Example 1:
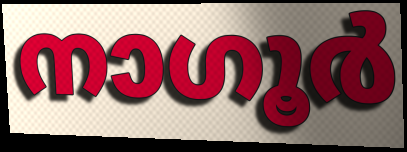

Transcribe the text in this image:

നാഗൂർ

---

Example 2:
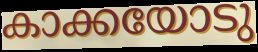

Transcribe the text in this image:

കാക്കയോടു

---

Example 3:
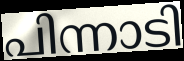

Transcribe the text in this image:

പിന്നാടി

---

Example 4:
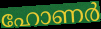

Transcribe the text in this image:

ഹോണർ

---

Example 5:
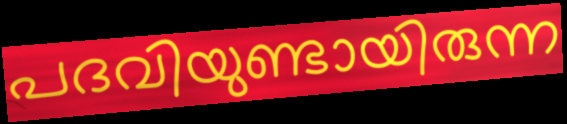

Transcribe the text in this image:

പദവിയുണ്ടായിരുന്ന